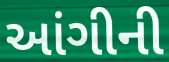
આંગીની